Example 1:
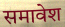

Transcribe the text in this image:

समावेश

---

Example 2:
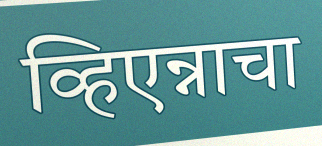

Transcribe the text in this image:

व्हिएन्नाचा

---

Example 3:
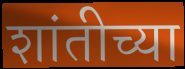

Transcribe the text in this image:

शांतीच्या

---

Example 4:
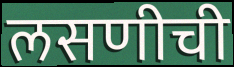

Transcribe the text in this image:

लसणीची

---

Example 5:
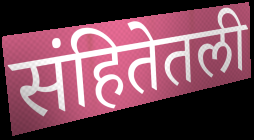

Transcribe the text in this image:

संहितेतली